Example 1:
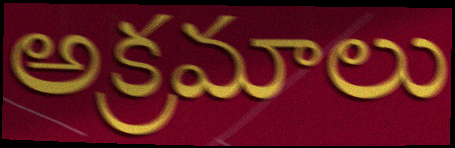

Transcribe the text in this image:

అక్రమాలు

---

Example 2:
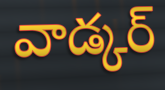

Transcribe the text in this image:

వాడ్కర్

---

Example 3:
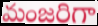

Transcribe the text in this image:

మంజరిగా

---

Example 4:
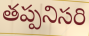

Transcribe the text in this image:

తప్పనిసరి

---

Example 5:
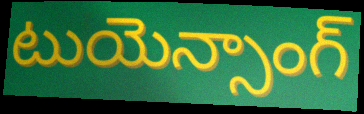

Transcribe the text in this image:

టుయెన్సాంగ్